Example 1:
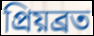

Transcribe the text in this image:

প্ৰিয়ব্ৰত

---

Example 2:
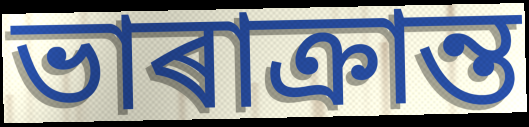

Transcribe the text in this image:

ভাৰাক্ৰান্ত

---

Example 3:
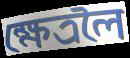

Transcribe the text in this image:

ক্ষেত্ৰলৈ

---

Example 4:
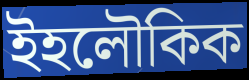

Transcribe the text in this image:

ইহলৌকিক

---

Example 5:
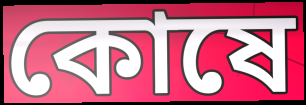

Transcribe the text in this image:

কোষে